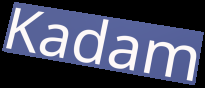
Kadam